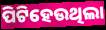
ପିଟିହେଉଥିଲା